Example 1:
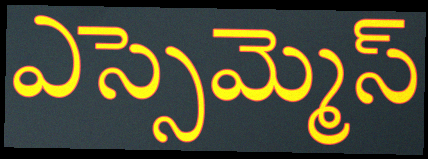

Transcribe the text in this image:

ఎస్సెమ్మెస్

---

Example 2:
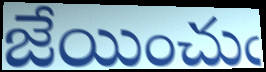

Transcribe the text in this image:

జేయించుఁ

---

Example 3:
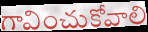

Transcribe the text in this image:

గావించుకోవాలి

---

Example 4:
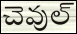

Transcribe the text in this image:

చెవుల్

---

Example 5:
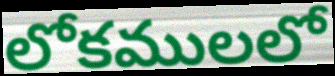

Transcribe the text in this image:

లోకములలో